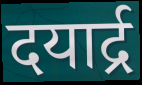
दयार्द्र